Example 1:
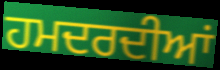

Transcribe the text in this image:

ਹਮਦਰਦੀਆਂ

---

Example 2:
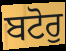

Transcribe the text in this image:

ਬਟੋਰੁ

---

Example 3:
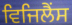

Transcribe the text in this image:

ਵਿਜਿਲੈਂਸ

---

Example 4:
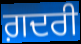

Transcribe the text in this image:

ਗ਼ਦਰੀ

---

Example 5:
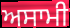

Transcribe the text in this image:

ਅਸਾਮੀ